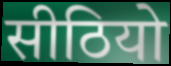
सीठियो